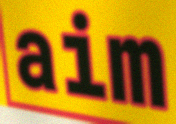
aim